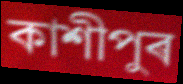
কাশীপুৰ